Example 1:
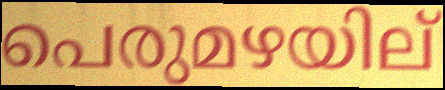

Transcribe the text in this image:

പെരുമഴയില്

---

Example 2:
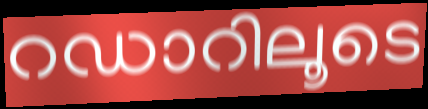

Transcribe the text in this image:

റഡാറിലൂടെ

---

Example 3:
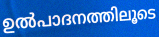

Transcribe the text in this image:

ഉൽപാദനത്തിലൂടെ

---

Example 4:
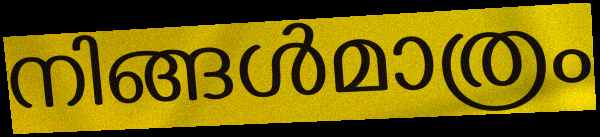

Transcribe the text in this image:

നിങ്ങൾമാത്രം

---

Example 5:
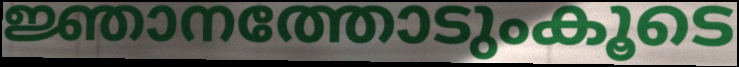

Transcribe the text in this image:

ജ്ഞാനത്തോടുംകൂടെ